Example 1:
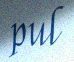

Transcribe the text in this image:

pul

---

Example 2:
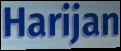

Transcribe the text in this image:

Harijan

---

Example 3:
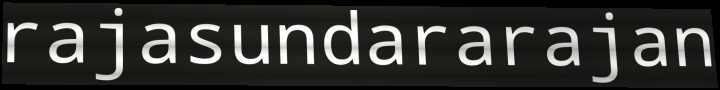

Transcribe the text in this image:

rajasundararajan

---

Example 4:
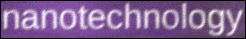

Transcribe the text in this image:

nanotechnology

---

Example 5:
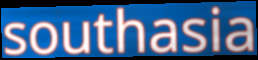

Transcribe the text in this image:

southasia